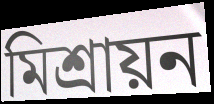
মিশ্রায়ন